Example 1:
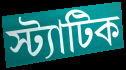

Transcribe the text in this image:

স্ট্যাটিক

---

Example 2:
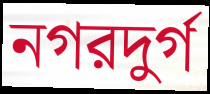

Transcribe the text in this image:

নগরদুর্গ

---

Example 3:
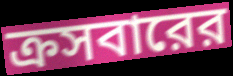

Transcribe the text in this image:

ক্রসবারের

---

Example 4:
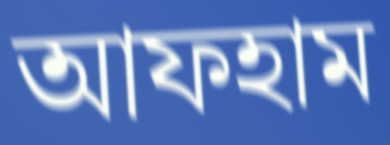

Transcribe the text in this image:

আফহাম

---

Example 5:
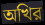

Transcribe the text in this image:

অখির